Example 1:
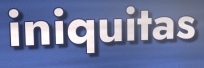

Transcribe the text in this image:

iniquitas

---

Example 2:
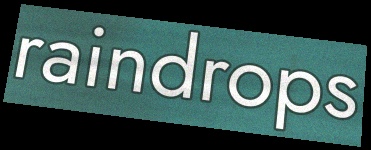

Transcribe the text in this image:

raindrops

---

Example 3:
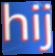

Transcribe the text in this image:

hij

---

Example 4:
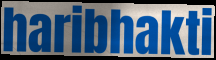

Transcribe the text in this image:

haribhakti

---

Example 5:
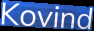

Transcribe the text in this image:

Kovind